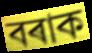
বৰাক